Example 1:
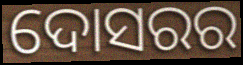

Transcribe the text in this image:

ଦୋସରର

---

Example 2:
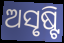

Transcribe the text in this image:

ଅସୃଷ୍ଟି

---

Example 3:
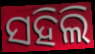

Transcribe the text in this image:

ସହିଲି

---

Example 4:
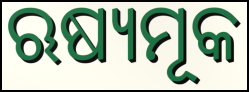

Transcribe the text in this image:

ଋଷ୍ୟମୂକ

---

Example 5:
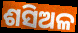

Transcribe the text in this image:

ଶସିଅଳ